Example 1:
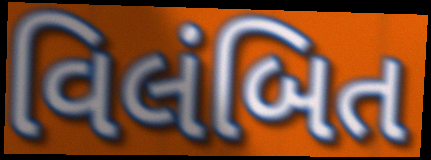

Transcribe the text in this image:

વિલંબિત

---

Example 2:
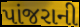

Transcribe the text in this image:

પાંજરાની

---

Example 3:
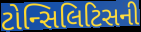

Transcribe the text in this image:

ટોન્સિલિટિસની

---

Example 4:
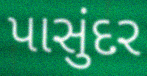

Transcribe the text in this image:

પાસુંદર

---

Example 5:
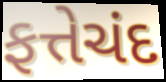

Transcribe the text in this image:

ફત્તેચંદ